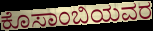
ಕೊಸಾಂಬಿಯವರ